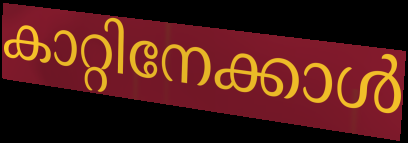
കാറ്റിനേക്കാൾ